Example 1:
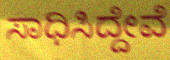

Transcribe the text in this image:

ಸಾಧಿಸಿದ್ದೇವೆ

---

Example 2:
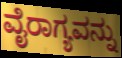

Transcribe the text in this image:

ವೈರಾಗ್ಯವನ್ನು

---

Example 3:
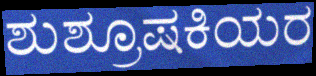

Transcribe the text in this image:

ಶುಶ್ರೂಷಕಿಯರ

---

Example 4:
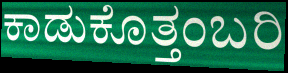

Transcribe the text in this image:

ಕಾಡುಕೊತ್ತಂಬರಿ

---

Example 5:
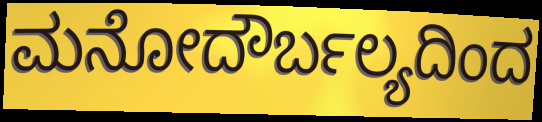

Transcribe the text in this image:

ಮನೋದೌರ್ಬಲ್ಯದಿಂದ